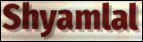
Shyamlal